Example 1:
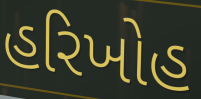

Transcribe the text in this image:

હરિખોહ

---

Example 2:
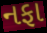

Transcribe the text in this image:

નફા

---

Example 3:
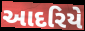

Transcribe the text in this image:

આદરિયે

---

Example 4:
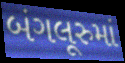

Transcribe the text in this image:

બંગલૂરુમાં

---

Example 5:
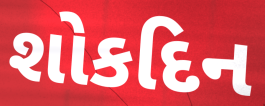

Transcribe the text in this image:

શોકદિન